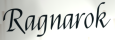
Ragnarok